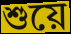
শুয়ে